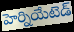
హెర్నియేటెడ్